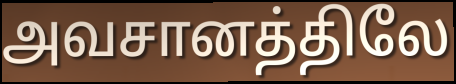
அவசானத்திலே